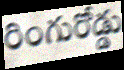
రింగురోడ్డు